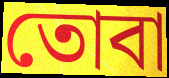
তোবা